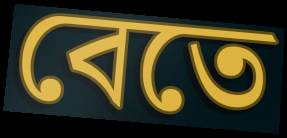
বেতে